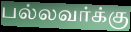
பல்லவர்க்கு